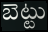
బెట్టు